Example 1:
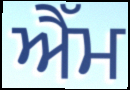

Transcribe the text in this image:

ਐੈੱਮ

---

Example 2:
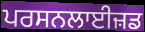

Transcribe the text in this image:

ਪਰਸਨਲਾਈਜ਼ਡ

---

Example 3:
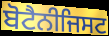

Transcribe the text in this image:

ਬੋਟੈਨੀਜਿਸਟ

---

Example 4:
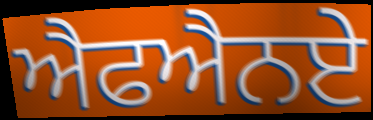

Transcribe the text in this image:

ਐਫਐਨਏ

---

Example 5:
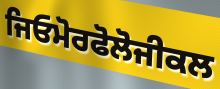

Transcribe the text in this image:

ਜਿਓਮੋਰਫੋਲੋਜੀਕਲ